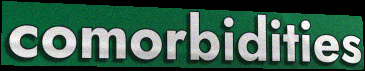
comorbidities